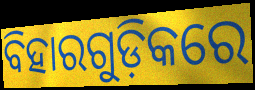
ବିହାରଗୁଡ଼ିକରେ